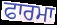
ਫਾਰਮਾ